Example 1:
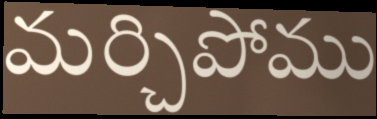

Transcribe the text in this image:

మర్చిపోము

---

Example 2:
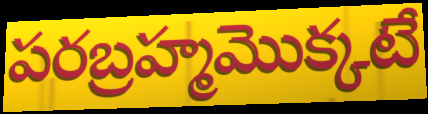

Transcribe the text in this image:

పరబ్రహ్మమొక్కటే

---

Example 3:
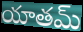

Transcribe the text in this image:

యాతమ్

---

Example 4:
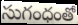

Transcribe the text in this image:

సుగంధంతో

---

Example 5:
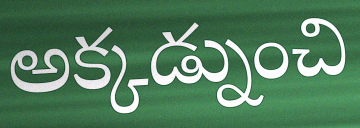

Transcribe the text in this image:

అక్కడ్నుంచి